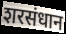
शरसंधान